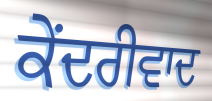
ਕੇਂਦਰੀਵਾਦ